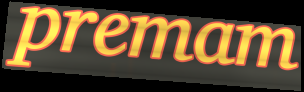
premam